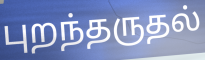
புறந்தருதல்